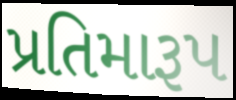
પ્રતિમારૂપ